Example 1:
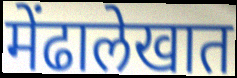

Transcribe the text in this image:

मेंढालेखात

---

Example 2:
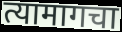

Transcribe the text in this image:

त्यामागचा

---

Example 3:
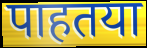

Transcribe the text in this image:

पाहतया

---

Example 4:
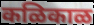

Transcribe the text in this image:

कळिकाळ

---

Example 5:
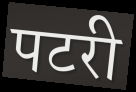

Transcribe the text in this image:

पटरी